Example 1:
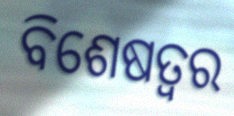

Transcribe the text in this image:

ବିଶେଷତ୍ବର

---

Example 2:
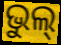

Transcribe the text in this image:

ଭୁଲ୍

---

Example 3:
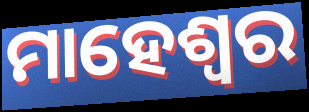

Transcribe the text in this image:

ମାହେଶ୍ଵର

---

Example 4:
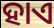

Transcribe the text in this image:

ହାଏ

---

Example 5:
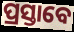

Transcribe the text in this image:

ପ୍ରସ୍ତାବେ